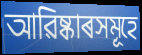
আৱিষ্কাৰসমূহে